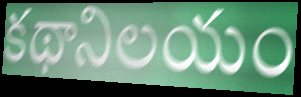
కథానిలయం